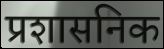
प्रशासनिक